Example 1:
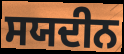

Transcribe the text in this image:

ਸਯਦੀਨ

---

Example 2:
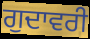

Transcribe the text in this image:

ਗੁਦਾਵਰੀ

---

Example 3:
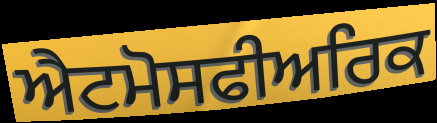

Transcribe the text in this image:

ਐਟਮੋਸਫੀਅਰਿਕ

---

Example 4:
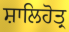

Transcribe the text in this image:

ਸ਼ਾਲਿਹੋਤ੍ਰ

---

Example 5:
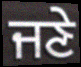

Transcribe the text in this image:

ਜਣੇ